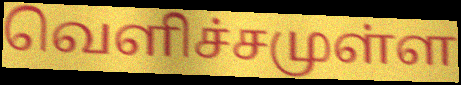
வெளிச்சமுள்ள